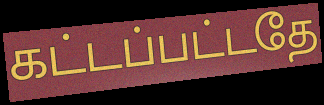
கட்டப்பட்டதே